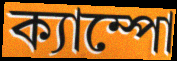
ক্যাম্পো